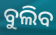
ବୁଲିବ